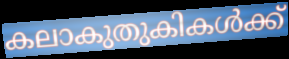
കലാകുതുകികൾക്ക്